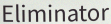
Eliminator